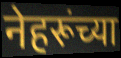
नेहरूंच्या